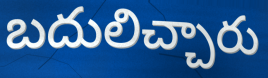
బదులిచ్చారు